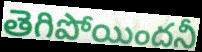
తెగిపోయిందనీ